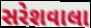
સરેશવાલા